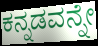
ಕನ್ನಡವನ್ನೇ